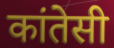
कांतेसी